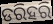
ଡରିହରି